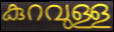
കുറവുള്ള